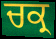
ਚਕ੍ਰ